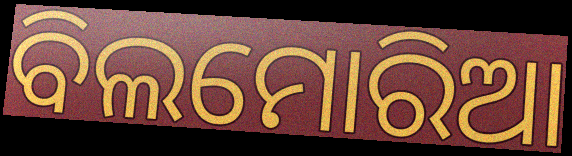
ବିଲମୋରିଆ